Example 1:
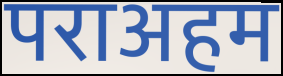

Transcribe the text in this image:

पराअहम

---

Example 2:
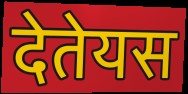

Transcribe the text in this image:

देतेयस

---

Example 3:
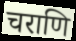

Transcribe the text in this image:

चराणि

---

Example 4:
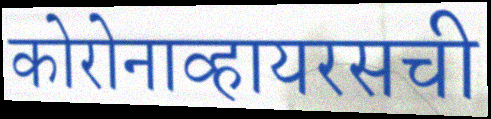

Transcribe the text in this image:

कोरोनाव्हायरसची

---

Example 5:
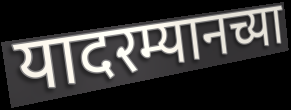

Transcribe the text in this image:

यादरम्यानच्या